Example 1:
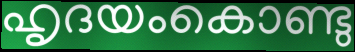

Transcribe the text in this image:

ഹൃദയംകൊണ്ടു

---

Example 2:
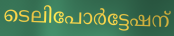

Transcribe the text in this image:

ടെലിപോർട്ടേഷന്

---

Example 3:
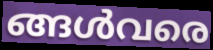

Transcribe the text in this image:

ങ്ങൾവരെ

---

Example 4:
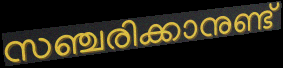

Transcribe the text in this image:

സഞ്ചരിക്കാനുണ്ട്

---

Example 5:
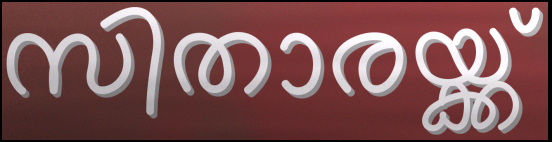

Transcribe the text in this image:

സിതാരയ്ക്ക്